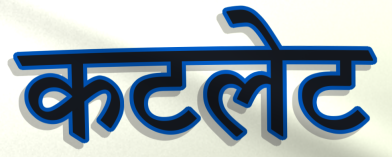
कटलेट